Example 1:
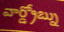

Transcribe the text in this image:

వార్డ్రోబ్ను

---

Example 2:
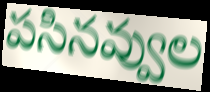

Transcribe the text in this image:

పసినవ్వుల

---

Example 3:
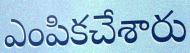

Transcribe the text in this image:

ఎంపికచేశారు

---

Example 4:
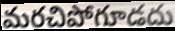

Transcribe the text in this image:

మరచిపోగూడదు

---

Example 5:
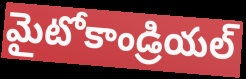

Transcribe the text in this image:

మైటోకాండ్రియల్